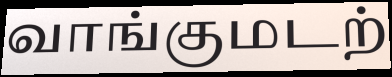
வாங்குமடற்